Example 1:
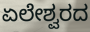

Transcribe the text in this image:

ಏಲೇಶ್ವರದ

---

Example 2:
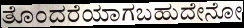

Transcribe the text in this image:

ತೊಂದರೆಯಾಗಬಹುದೇನೋ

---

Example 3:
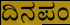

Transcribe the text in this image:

ದಿನಪಂ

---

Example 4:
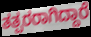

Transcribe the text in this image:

ತತ್ಪರರಾಗಿದ್ದಾರೆ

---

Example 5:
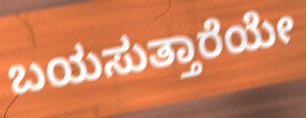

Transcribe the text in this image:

ಬಯಸುತ್ತಾರೆಯೇ